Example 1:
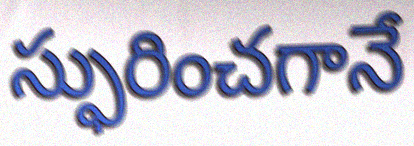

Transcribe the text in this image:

స్ఫురించగానే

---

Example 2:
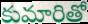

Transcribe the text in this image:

కుమారితో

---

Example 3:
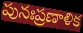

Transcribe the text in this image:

పునఃప్రణాళిక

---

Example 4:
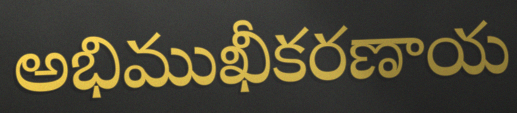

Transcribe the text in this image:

అభిముఖీకరణాయ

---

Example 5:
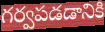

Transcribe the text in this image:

గర్వపడడానికి